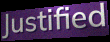
Justified